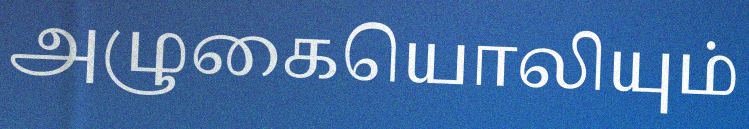
அழுகையொலியும்